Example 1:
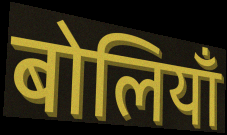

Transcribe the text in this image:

बोलियाँ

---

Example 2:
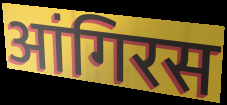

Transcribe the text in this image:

आंगिरस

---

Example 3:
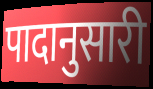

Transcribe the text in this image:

पादानुसारी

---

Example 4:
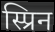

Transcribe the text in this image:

स्प्रिन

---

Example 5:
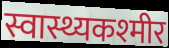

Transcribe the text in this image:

स्वास्थ्यकश्‍मीर